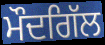
ਮੌਦਗਿੱਲ